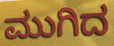
ಮುಗಿದ